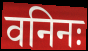
वनिनः